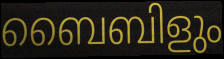
ബൈബിളും